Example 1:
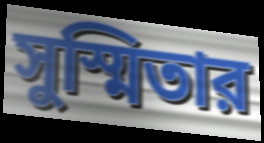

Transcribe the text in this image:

সুস্মিতার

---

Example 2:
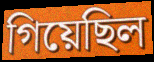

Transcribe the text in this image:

গিয়েছিল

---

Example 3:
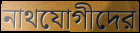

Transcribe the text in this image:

নাথযোগীদের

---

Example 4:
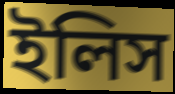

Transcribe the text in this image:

ইলিস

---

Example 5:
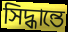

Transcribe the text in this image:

সিদ্ধান্তে